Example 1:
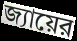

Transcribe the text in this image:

জ্যায়ের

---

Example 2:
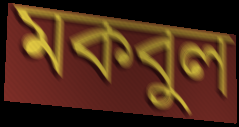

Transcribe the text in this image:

মকবুল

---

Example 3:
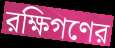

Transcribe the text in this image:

রক্ষিগণের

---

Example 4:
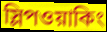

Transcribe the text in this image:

স্লিপওয়াকিং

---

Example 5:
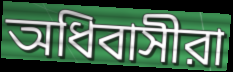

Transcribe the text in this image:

অধিবাসীরা